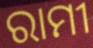
ରାମୀ